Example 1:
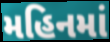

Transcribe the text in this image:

મહિનમાં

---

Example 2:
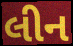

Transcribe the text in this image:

લીન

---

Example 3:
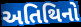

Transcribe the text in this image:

અતિથિનો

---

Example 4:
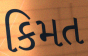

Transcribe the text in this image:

કિમત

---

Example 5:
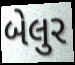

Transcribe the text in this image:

બેલુર